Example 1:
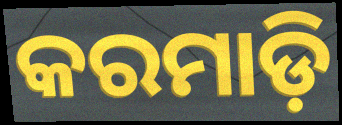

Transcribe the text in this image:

କରମାଡ଼ି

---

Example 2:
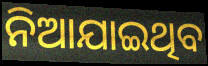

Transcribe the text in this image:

ନିଆଯାଇଥିବ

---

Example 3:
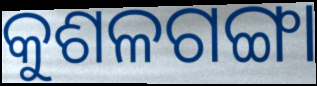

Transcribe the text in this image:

କୁଶଳଗଙ୍ଗା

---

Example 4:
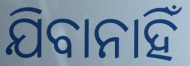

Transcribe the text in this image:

ଯିବାନାହିଁ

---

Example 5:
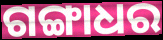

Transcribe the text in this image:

ଗଙ୍ଗାଧର